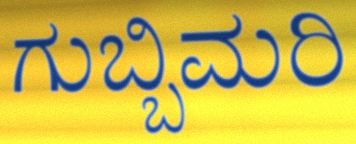
ಗುಬ್ಬಿಮರಿ